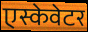
एस्केवेटर